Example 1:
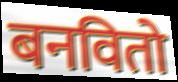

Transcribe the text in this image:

बनवितो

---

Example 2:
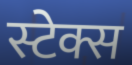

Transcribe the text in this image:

स्टेक्स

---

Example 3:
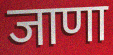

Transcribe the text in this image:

जाणा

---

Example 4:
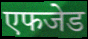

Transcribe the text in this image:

एफजेड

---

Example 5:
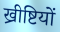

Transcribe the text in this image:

ख्रीष्टियों